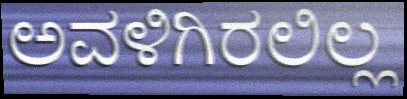
ಅವಳಿಗಿರಲಿಲ್ಲ